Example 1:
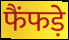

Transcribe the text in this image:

फैंफड़े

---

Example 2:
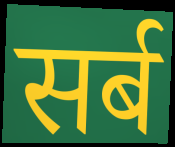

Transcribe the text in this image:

सर्ब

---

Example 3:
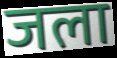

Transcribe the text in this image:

जला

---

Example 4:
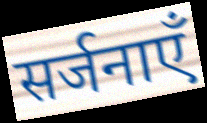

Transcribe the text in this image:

सर्जनाएँ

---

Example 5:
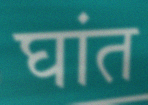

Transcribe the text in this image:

घांत